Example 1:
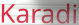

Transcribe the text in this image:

Karadi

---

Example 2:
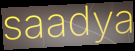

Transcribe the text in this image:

saadya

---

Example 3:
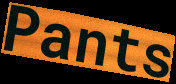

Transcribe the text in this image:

Pants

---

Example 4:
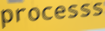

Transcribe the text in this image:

processs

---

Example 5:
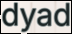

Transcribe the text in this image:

dyad